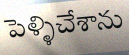
పెళ్ళిచేశాను